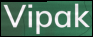
Vipak